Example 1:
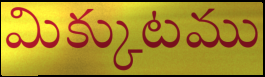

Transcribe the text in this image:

మిక్కుటము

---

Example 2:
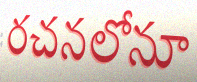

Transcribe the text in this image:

రచనలోనూ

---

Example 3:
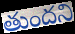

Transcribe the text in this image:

తుందని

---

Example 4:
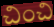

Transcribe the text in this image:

చించి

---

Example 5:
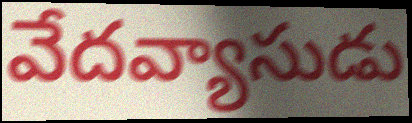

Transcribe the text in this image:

వేదవ్యాసుడు